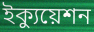
ইক্যুয়েশন